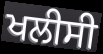
ਖਲੀਸੀ